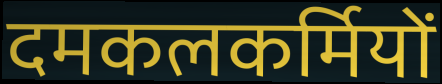
दमकलकर्मियों